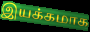
இயக்கமாக